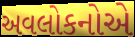
અવલોકનોએ